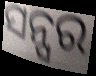
ସନ୍ସର